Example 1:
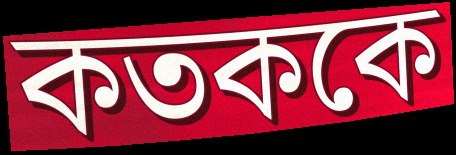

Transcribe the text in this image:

কতককে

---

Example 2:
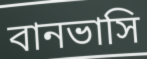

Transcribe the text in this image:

বানভাসি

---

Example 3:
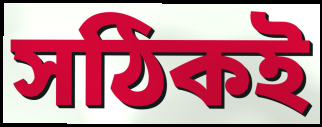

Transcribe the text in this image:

সঠিকই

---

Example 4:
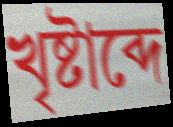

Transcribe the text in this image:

খৃষ্টাব্দে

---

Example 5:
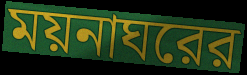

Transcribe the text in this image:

ময়নাঘরের